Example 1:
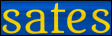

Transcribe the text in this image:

sates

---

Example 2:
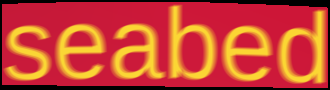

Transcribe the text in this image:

seabed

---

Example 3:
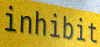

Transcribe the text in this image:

inhibit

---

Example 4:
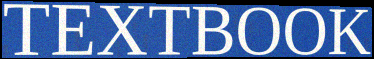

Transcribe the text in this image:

TEXTBOOK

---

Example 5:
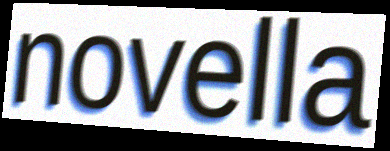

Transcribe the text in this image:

novella